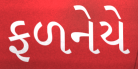
ફળનેયે